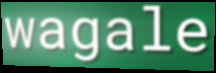
wagale